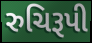
રુચિરૂપી